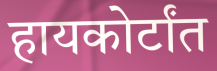
हायकोर्टांत